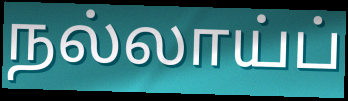
நல்லாய்ப்